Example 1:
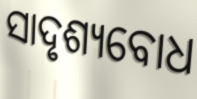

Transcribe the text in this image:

ସାଦୃଶ୍ୟବୋଧ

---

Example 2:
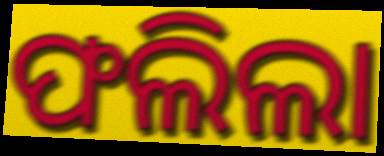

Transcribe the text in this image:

ଫଲିଲା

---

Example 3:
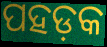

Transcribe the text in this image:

ପହଡ଼କ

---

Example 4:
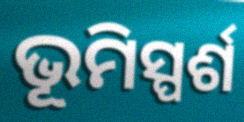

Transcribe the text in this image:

ଭୂମିସ୍ପର୍ଶ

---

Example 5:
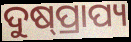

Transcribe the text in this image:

ଦୁଷ୍‌ପ୍ରାପ୍ୟ